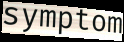
symptom